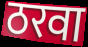
ठरवा